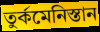
তুৰ্কমেনিস্তান